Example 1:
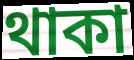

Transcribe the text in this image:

থাকা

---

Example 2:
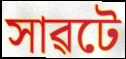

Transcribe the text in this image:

সাৱটে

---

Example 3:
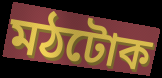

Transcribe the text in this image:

মঠটোক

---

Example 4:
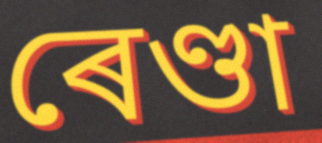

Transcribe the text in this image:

ৰেণ্ডা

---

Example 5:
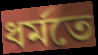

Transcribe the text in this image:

ধৰ্মতে